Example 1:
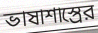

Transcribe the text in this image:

ভাষাশাস্ত্রের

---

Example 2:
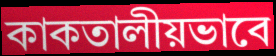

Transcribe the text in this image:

কাকতালীয়ভাবে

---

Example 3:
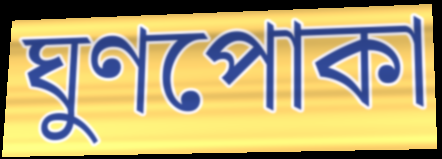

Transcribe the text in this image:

ঘুণপোকা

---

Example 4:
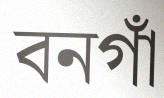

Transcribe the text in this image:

বনগাঁ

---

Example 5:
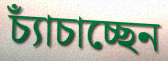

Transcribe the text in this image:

চ্যাঁচাচ্ছেন